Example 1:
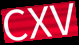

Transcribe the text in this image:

CXV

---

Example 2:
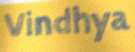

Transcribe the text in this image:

Vindhya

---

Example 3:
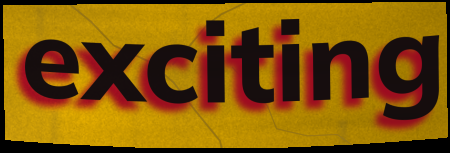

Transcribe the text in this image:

exciting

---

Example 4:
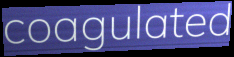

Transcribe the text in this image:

coagulated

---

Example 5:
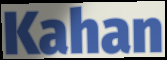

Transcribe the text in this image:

Kahan